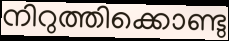
നിറുത്തിക്കൊണ്ടു